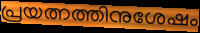
പ്രയത്നത്തിനുശേഷം